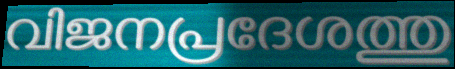
വിജനപ്രദേശത്തു